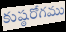
కుష్ఠరోగము